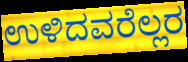
ಉಳಿದವರೆಲ್ಲರ